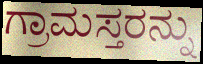
ಗ್ರಾಮಸ್ತರನ್ನು